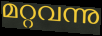
മറ്റവന്നു